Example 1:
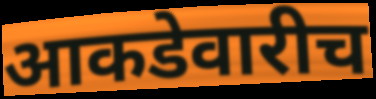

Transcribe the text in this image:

आकडेवारीच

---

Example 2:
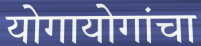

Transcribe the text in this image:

योगायोगांचा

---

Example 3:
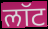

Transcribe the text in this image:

लॉट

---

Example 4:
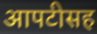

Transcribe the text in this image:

आपटीसह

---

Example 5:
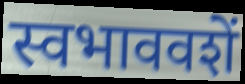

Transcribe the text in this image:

स्वभाववशें